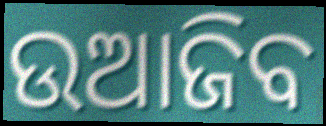
ଉଆଜିବ